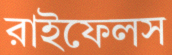
রাইফেলস